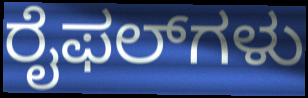
ರೈಫಲ್‌ಗಳು